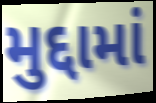
મુદ્દામાં